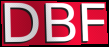
DBF